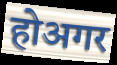
होअगर